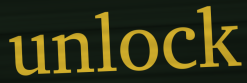
unlock